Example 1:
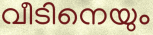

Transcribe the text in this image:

വീടിനെയും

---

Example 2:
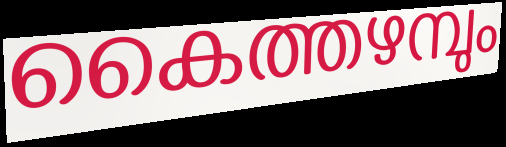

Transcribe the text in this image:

കൈത്തഴമ്പും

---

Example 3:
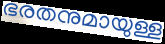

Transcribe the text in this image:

ഭരതനുമായുള്ള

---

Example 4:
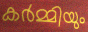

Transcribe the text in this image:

കർമ്മിയും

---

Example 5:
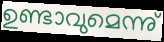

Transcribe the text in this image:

ഉണ്ടാവുമെന്നു്